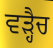
ਵੜ੍ਹੈਚ